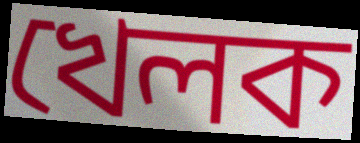
খেলক